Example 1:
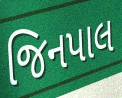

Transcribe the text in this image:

જિનપાલ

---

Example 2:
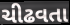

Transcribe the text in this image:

ચીઢવતા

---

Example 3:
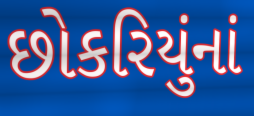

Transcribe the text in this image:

છોકરિયુંનાં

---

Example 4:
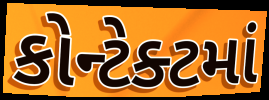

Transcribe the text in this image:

કોન્ટેક્ટમાં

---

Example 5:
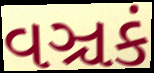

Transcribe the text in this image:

વઞ્ચકં